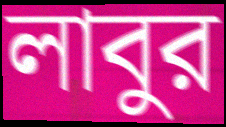
লাবুর